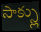
సాక్స్లు